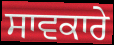
ਸਾਵਕਾਰੇ